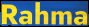
Rahma